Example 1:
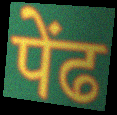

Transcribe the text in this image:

पेंढ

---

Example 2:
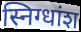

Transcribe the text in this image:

स्निग्धांश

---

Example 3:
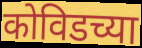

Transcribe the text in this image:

कोविडच्या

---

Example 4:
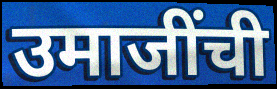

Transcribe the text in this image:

उमाजींची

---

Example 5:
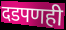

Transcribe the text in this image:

दडपणही